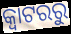
କ୍ୱାଟରରୁ